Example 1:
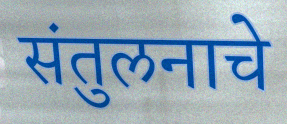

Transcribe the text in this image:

संतुलनाचे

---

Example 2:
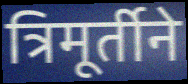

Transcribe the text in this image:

त्रिमूर्तीने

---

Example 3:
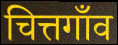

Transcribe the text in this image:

चित्तगाँव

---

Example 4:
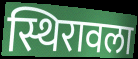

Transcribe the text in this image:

स्थिरावला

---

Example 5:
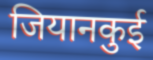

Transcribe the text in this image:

जियानकुई